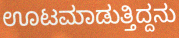
ಊಟಮಾಡುತ್ತಿದ್ದನು